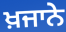
ਖ਼ਜਾਨੇ